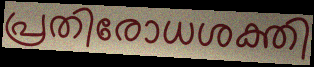
പ്രതിരോധശക്തി